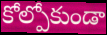
కోల్పోకుండా